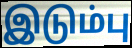
இடும்பு